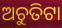
ଅଚୁତିଟା